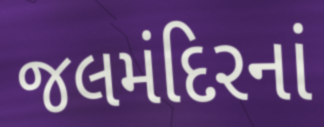
જલમંદિરનાં